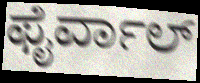
ಫೈರ್ವಾಲ್